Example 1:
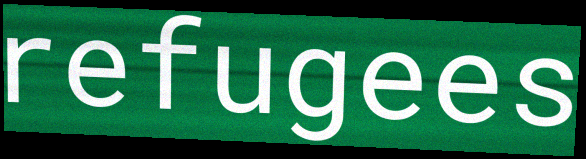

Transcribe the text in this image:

refugees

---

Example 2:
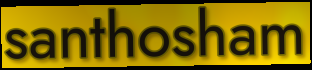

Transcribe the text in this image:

santhosham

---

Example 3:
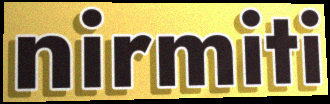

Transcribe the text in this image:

nirmiti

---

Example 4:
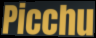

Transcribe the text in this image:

Picchu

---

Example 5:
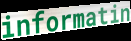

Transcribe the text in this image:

informatin